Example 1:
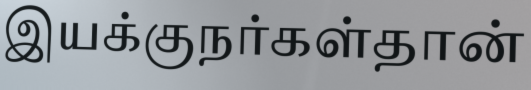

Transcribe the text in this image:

இயக்குநர்கள்தான்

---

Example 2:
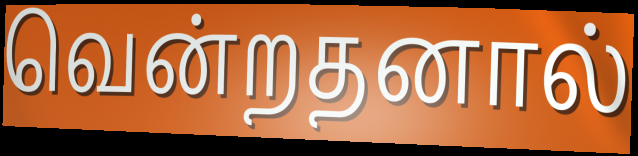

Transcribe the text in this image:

வென்றதனால்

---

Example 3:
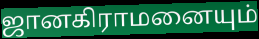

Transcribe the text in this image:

ஜானகிராமனையும்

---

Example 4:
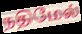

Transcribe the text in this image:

நதிமேல்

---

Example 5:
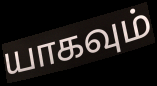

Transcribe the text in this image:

யாகவும்